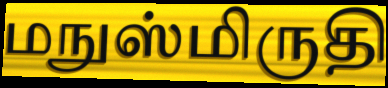
மநுஸ்மிருதி